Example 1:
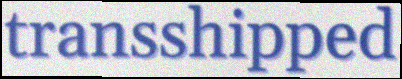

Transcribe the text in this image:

transshipped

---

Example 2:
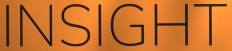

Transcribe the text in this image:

INSIGHT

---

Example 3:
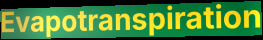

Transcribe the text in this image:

Evapotranspiration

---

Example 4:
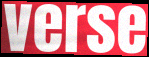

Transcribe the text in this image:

verse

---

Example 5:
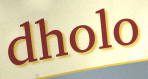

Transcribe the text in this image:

dholo